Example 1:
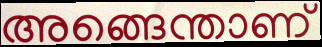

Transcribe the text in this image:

അങ്ങെന്താണ്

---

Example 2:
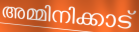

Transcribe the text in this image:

അമ്മിനിക്കാട്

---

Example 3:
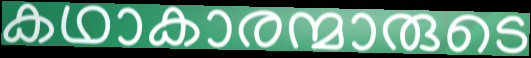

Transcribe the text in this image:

കഥാകാരന്മാരുടെ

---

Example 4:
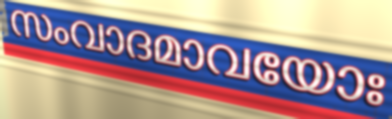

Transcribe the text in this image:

സംവാദമാവയോഃ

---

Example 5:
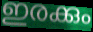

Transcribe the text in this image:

ഇരക്കും